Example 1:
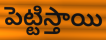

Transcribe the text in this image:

పెట్టిస్తాయి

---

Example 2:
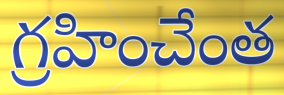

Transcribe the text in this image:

గ్రహించేంత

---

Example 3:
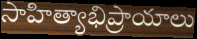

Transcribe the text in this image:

సాహిత్యాభిప్రాయాలు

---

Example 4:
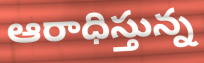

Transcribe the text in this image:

ఆరాధిస్తున్న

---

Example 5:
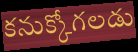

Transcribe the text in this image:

కనుక్కోగలడు